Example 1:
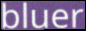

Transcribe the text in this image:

bluer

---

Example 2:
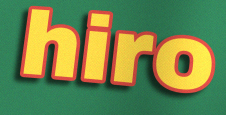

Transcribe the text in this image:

hiro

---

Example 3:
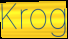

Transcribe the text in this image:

Krog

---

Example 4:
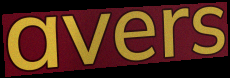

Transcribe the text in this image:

avers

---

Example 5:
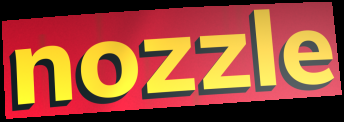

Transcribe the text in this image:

nozzle